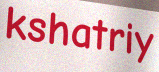
kshatriy